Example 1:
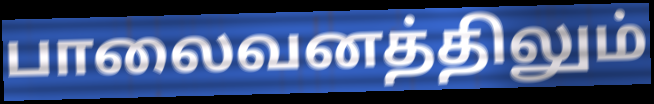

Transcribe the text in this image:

பாலைவனத்திலும்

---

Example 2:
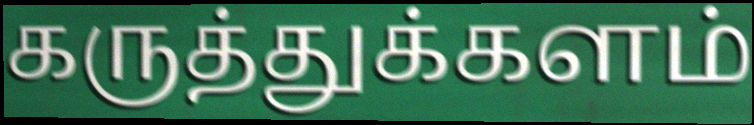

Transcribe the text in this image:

கருத்துக்களம்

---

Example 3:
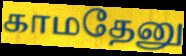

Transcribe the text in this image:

காமதேனு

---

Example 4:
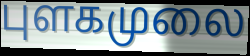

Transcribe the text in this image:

புளகமுலை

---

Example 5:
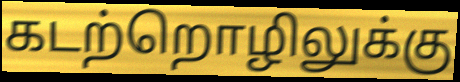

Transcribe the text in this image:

கடற்றொழிலுக்கு